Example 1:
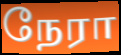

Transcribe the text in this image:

நேரா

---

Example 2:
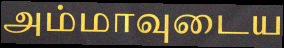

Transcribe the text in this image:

அம்மாவுடைய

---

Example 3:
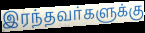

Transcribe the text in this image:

இரந்தவர்களுக்கு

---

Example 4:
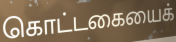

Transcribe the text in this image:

கொட்டகையைக்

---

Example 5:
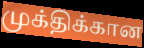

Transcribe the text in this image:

முக்திக்கான